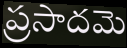
ప్రసాదమె